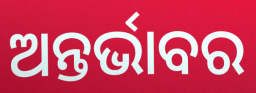
ଅନ୍ତର୍ଭାବର